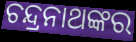
ଚନ୍ଦ୍ରନାଥଙ୍କର